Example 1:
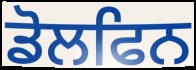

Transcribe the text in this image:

ਡੋਲਫਿਨ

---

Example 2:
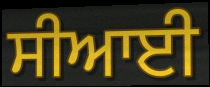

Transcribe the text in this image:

ਸੀਆਈ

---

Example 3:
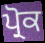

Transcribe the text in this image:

ਪ੍ਰੋਕ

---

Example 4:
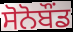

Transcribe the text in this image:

ਸੋਨੋਬੌਂਡ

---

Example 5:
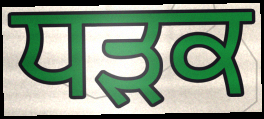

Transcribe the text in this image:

ਧੜਕ